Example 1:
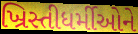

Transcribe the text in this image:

ખ્રિસ્તીધર્મીઓને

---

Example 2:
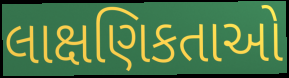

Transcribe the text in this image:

લાક્ષણિકતાઓ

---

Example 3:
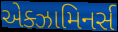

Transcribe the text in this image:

એક્ઝામિનર્સ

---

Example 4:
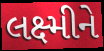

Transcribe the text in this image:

લક્ષ્મીને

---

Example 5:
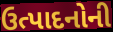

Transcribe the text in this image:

ઉત્પાદનોની